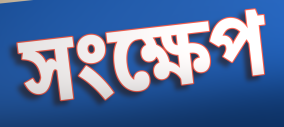
সংক্ষেপ